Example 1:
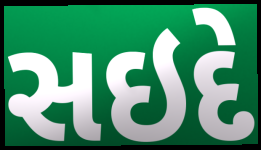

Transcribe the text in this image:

સઇદે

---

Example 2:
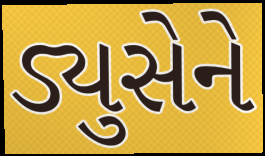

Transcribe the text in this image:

ડ્યુસેને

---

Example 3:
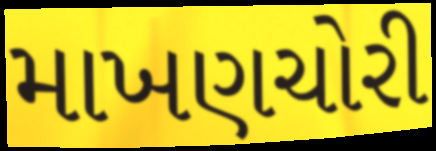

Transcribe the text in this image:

માખણચોરી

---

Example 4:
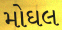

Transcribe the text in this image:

મોઘલ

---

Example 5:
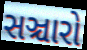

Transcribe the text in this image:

સઞ્ચારો